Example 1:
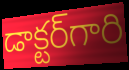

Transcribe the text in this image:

డాక్టర్‌గారి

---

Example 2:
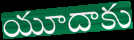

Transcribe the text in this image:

యూదాకు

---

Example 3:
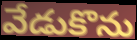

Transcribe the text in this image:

వేడుకొను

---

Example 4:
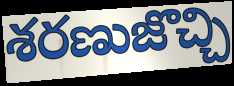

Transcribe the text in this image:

శరణుజొచ్చి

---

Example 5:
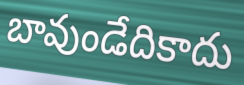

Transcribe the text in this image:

బావుండేదికాదు